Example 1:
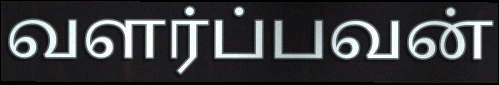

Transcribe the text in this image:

வளர்ப்பவன்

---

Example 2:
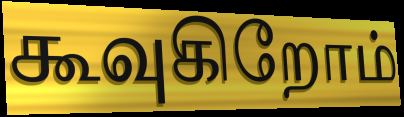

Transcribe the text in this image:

கூவுகிறோம்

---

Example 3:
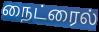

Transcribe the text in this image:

நைட்ரைல்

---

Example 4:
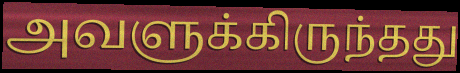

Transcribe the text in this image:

அவளுக்கிருந்தது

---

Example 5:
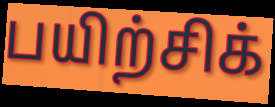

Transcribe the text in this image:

பயிற்சிக்